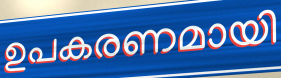
ഉപകരണമായി